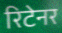
रिटेनर